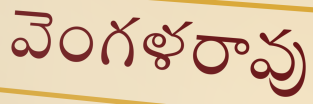
వెంగళరావు